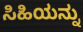
ಸಿಹಿಯನ್ನು